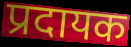
प्रदायक